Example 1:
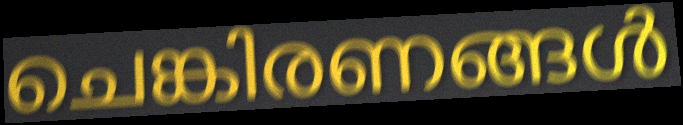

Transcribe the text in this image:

ചെങ്കിരണങ്ങൾ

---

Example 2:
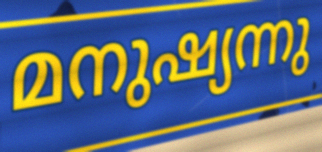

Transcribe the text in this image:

മനുഷ്യന്നു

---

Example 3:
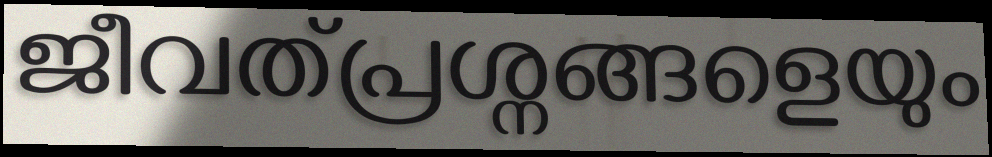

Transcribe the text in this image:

ജീവത്പ്രശ്നങ്ങളെയും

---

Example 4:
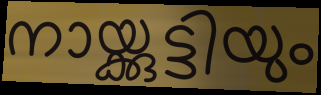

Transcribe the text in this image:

നായ്ക്കുട്ടിയും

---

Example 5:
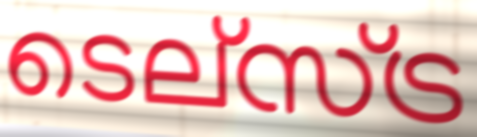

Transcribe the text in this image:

ടെല്സ്ട്ര